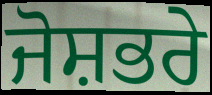
ਜੋਸ਼ਭਰੇ